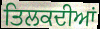
ਤਿਲਕਦੀਆਂ